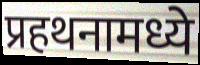
प्रहथनामध्ये